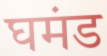
घमंड